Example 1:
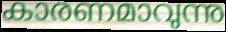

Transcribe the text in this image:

കാരണമാവുന്നു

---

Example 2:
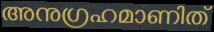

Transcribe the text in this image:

അനുഗ്രഹമാണിത്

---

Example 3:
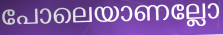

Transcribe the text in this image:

പോലെയാണല്ലോ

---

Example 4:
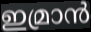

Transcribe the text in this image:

ഇമ്രാൻ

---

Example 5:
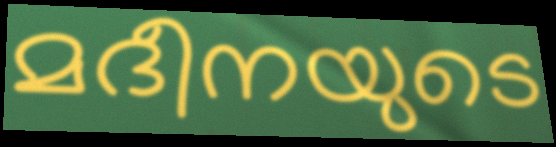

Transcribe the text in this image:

മദീനയുടെ